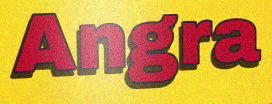
Angra